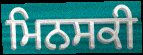
ਮਿਨਸਕੀ